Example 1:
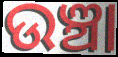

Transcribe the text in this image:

ଉଞ୍ଚା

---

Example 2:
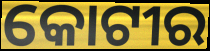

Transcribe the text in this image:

କୋଟୀର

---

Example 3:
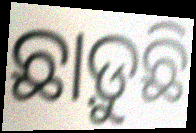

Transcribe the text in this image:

ଛାଡ଼ୁଛି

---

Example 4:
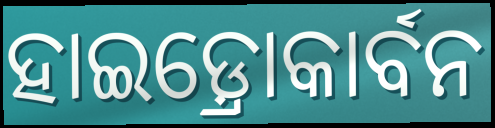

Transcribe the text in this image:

ହାଇଡ଼୍ରୋକାର୍ବନ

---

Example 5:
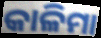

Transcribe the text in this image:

କାଳିମା